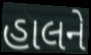
હાલને